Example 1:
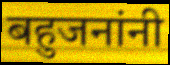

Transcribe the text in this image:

बहुजनांनी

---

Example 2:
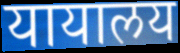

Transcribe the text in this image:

यायालय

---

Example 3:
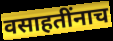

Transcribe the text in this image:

वसाहतींनाच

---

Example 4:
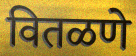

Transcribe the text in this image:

वितळणे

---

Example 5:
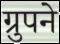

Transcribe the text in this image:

ग्रुपने